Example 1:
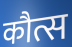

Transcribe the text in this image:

कौत्स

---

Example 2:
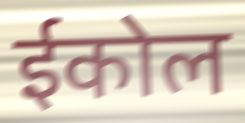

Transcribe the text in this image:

ईकोल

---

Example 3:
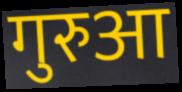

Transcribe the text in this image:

गुरुआ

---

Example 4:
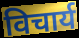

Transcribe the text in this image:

विचार्य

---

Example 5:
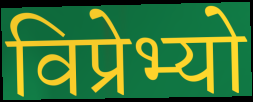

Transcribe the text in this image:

विप्रेभ्यो